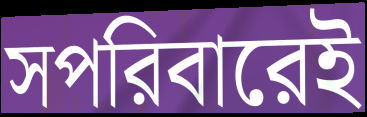
সপরিবারেই